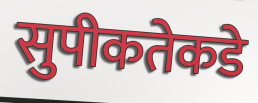
सुपीकतेकडे